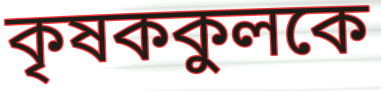
কৃষককুলকে